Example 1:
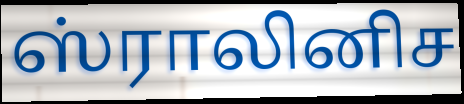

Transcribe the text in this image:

ஸ்ராலினிச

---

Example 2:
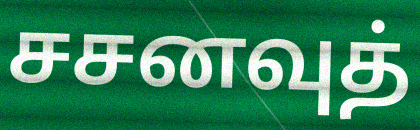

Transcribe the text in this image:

சசனவுத்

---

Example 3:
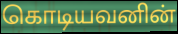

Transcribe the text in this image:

கொடியவனின்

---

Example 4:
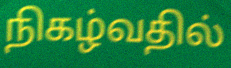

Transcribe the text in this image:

நிகழ்வதில்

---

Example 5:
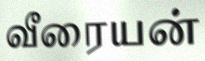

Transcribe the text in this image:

வீரையன்